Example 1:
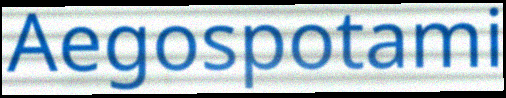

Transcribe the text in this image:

Aegospotami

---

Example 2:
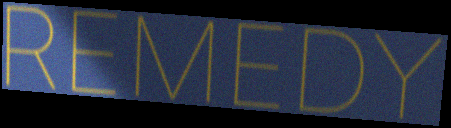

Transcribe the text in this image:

REMEDY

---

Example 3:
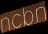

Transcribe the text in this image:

ncbn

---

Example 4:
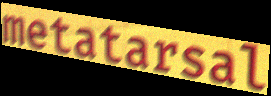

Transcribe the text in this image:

metatarsal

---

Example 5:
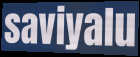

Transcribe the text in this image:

saviyalu